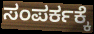
ಸಂಪರ್ಕಕ್ಕೆ